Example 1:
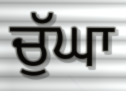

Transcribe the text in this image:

ਚੁੱਘਾ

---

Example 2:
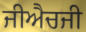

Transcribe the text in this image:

ਜੀਐਚਜੀ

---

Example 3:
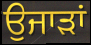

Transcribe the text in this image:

ਉਜਾੜਾਂ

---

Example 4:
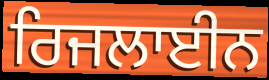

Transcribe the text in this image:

ਰਿਜਲਾਈਨ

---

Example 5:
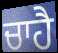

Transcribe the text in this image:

ਚਾਹੈ